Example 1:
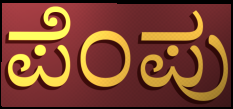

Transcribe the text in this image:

ಪೆಂಪು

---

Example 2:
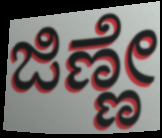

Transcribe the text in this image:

ಜಿಣ್ಣೇ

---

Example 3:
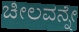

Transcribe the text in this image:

ಚೀಲವನ್ನೇ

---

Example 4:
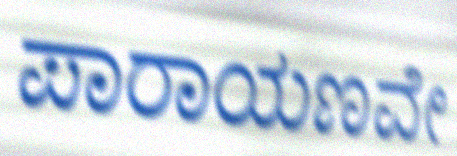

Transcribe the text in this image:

ಪಾರಾಯಣವೇ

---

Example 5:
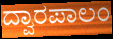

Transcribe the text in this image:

ದ್ವಾರಪಾಲಂ